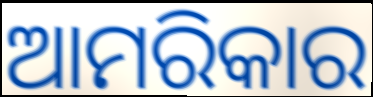
ଆମରିକାର